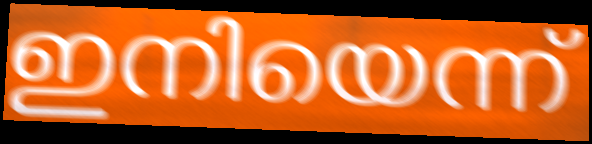
ഇനിയെന്ന്